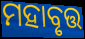
ମହାବୃତ୍ତ